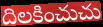
దిలకించుచు